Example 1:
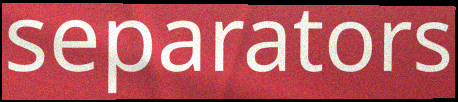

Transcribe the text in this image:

separators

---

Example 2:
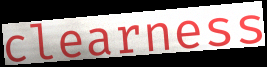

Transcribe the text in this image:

clearness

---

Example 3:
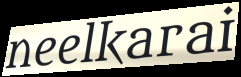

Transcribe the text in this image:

neelkarai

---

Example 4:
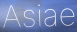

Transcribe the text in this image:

Asiae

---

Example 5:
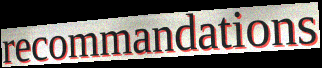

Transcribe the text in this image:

recommandations